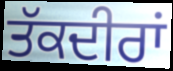
ਤੱਕਦੀਰਾਂ